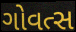
ગોવત્સ